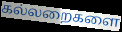
கல்லறைகளை